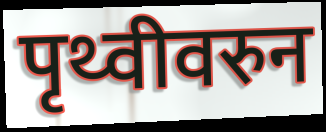
पृथ्वीवरुन